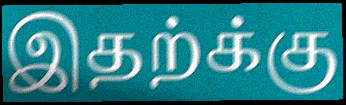
இதற்க்கு